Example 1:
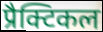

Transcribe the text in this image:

प्रैक्टिकल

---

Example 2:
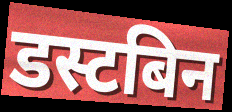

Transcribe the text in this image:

डस्टबिन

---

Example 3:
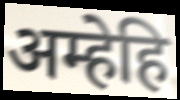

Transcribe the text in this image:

अम्हेहि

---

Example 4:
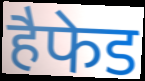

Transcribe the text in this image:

हैफेड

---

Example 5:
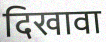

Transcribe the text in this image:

दिखावा